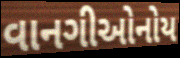
વાનગીઓનોય